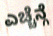
ಎಚ್ಚೆನ್ಗೆ